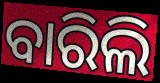
ବାରିଲି